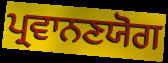
ਪ੍ਰਵਾਨਣਯੋਗ